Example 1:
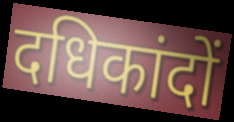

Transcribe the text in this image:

दधिकांदों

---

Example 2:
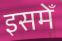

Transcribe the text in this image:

इसमेँ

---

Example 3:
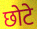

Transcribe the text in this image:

छोटे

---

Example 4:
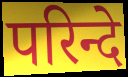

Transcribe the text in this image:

परिन्दे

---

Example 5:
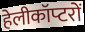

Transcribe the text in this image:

हेलीकॉप्‍टरों